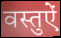
वस्तुऐं